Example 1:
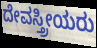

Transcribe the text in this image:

ದೇವಸ್ತ್ರೀಯರು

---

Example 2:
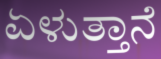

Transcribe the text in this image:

ಏಳುತ್ತಾನೆ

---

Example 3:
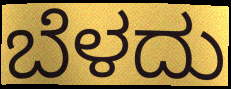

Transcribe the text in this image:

ಬೆಳದು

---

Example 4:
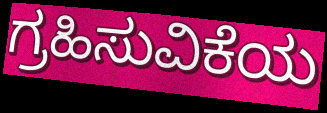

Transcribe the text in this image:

ಗ್ರಹಿಸುವಿಕೆಯ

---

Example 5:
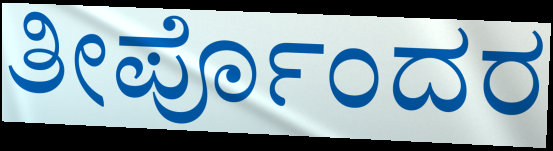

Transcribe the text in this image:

ತೀರ್ಪೊಂದರ